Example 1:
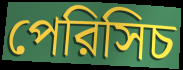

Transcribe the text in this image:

পেরিসিচ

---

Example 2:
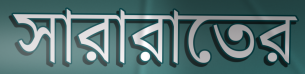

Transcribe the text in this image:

সারারাতের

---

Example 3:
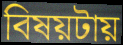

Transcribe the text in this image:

বিষয়টায়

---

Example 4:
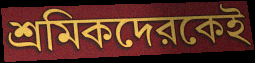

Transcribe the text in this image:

শ্রমিকদেরকেই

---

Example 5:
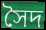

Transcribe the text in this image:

সৈদ